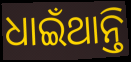
ଧାଇଁଥାନ୍ତି